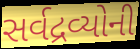
સર્વદ્રવ્યોની